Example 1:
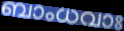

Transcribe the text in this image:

ബാംധവാഃ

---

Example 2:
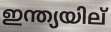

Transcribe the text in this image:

ഇന്ത്യയില്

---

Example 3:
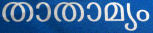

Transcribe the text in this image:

താതാമ്യം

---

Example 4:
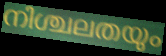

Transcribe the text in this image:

നിശ്ചലതയും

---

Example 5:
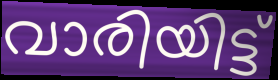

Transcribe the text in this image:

വാരിയിട്ട്